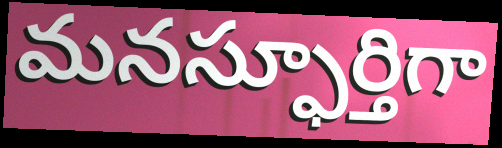
మనస్ఫూర్తిగా